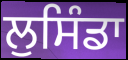
ਲੁਸਿੰਡਾ